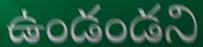
ఉండండని